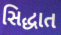
સિદ્ધાત